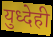
युध्देही